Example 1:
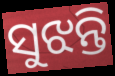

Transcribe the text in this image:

ସୁଝନ୍ତି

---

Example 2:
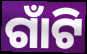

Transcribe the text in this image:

ଗାଁଟି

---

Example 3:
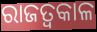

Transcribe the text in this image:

ରାଜତ୍ଵକାଳ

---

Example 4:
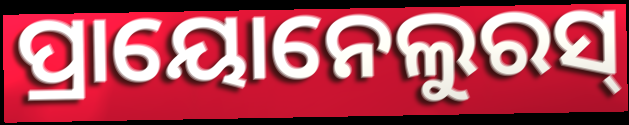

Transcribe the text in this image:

ପ୍ରାୟୋନେଲୁରସ୍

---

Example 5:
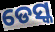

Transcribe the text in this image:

ଡେସ୍କ